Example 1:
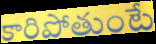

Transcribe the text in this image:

కారిపోతుంటే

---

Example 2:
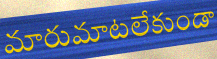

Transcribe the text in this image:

మారుమాటలేకుండా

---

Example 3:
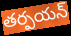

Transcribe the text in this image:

తర్పయన్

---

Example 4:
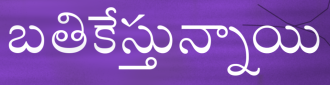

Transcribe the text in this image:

బతికేస్తున్నాయి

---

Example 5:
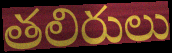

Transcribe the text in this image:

తలిరులు